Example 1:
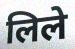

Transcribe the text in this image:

लिले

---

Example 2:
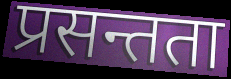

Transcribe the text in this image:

प्रसन्तता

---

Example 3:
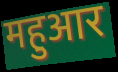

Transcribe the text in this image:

महुआर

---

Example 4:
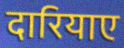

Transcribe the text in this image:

दारियाए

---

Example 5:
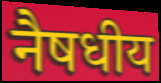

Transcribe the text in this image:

नैषधीय